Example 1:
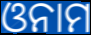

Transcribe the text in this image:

ଓନାମ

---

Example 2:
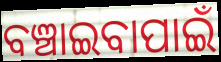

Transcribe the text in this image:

ବଞ୍ଚାଇବାପାଇଁ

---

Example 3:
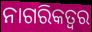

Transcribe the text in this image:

ନାଗରିକତ୍ଵର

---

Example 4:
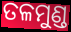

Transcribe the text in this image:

ତଳମୁଣ୍ଡ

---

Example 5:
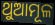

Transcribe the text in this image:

ଥୁଆମୂଳ